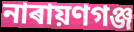
নাৰায়ণগঞ্জ